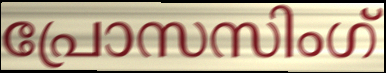
പ്രോസസിംഗ്